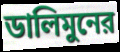
ডালিমুনের